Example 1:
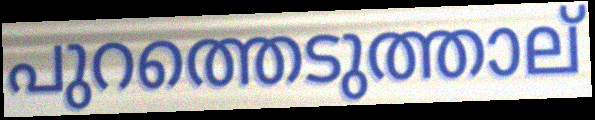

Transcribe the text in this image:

പുറത്തെടുത്താല്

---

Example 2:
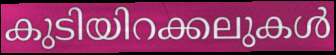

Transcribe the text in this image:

കുടിയിറക്കലുകൾ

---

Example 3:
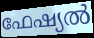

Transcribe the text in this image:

ഫേഷ്യൽ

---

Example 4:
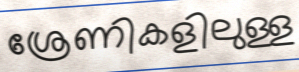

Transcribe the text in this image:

ശ്രേണികളിലുള്ള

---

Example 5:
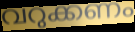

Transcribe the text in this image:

വറുക്കണം